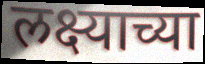
लक्ष्याच्या